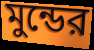
মুন্ডের